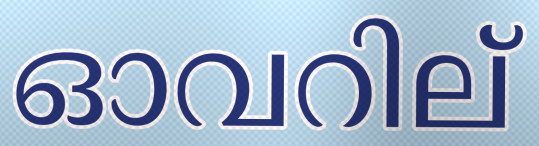
ഓവറില്